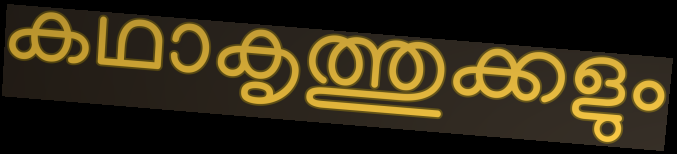
കഥാകൃത്തുക്കളും